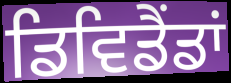
ਡਿਵਿਡੈਂਡਾਂ